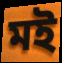
মই